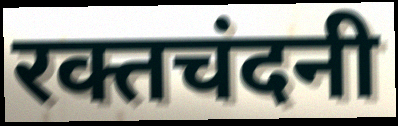
रक्तचंदनी